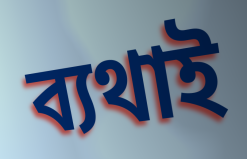
ব্যথাই